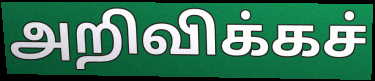
அறிவிக்கச்